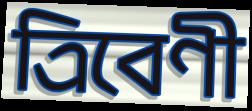
ত্রিবেণী